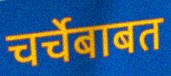
चर्चेबाबत